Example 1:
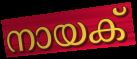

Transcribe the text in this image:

നായക്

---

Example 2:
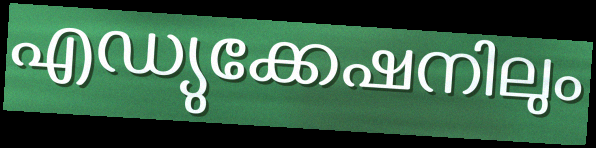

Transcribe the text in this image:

എഡ്യുക്കേഷനിലും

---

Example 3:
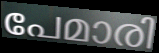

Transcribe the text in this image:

പേമാരി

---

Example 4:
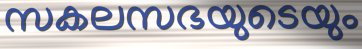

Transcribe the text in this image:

സകലസഭയുടെയും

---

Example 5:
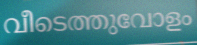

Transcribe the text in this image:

വീടെത്തുവോളം